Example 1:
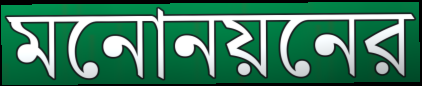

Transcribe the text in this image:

মনোনয়নের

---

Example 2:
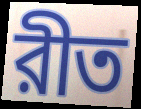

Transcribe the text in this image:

রীত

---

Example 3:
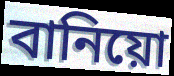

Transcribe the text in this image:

বানিয়ো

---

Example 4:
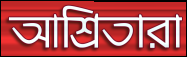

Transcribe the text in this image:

আশ্রিতারা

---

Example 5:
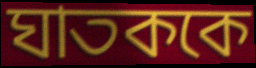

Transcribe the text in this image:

ঘাতককে